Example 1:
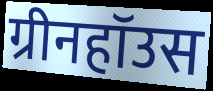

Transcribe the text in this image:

ग्रीनहॉउस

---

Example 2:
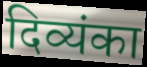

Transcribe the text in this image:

दिव्यंका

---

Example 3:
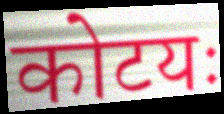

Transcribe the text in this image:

कोटयः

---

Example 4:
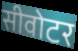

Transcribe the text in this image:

सीवोटर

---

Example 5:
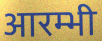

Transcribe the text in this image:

आरम्भी